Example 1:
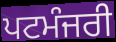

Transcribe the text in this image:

ਪਟਮੰਜਰੀ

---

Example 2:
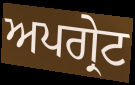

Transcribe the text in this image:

ਅਪਗ੍ਰੇਟ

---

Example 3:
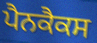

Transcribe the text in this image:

ਪੈਨਕੈਕਸ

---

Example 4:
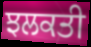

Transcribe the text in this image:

ਝਲਕਤੀ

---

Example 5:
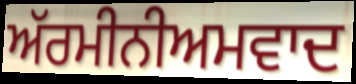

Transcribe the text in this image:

ਅੱਰਮੀਨੀਅਮਵਾਦ